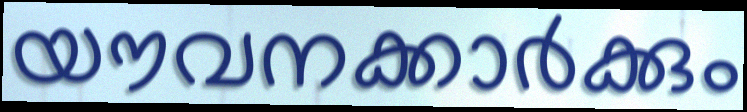
യൗവനക്കാർക്കും